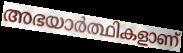
അഭയാർത്ഥികളാണ്